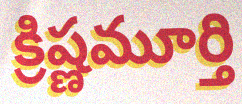
క్రిష్ణమూర్తి